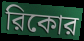
রিকোর